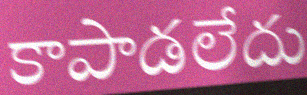
కాపాడలేదు